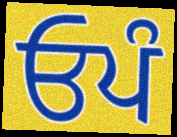
ਓਪੰ